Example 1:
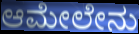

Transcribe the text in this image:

ಆಮೇಲೇನು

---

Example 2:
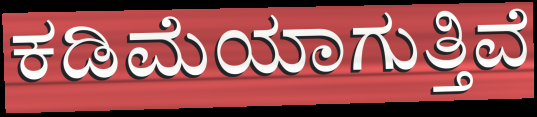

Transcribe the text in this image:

ಕಡಿಮೆಯಾಗುತ್ತಿವೆ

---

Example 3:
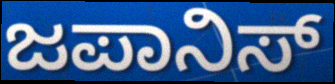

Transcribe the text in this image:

ಜಪಾನಿಸ್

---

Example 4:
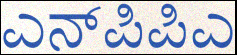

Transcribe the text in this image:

ಎನ್‌ಪಿಪಿಎ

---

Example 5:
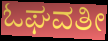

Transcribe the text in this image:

ಓಘವತೀ